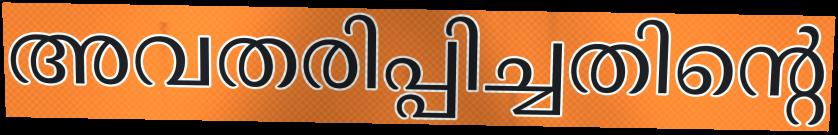
അവതരിപ്പിച്ചതിന്റെ